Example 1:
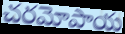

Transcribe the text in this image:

చరమోపాయ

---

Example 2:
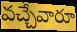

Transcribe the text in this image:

వచ్చేవారూ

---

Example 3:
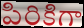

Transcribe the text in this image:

పిరికిగా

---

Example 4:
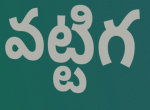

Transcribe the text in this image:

వట్టిగ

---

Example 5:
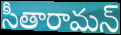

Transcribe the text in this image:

సీతారామన్